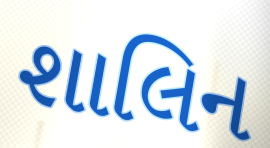
શાલિન